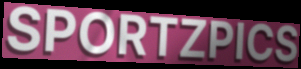
SPORTZPICS